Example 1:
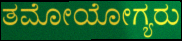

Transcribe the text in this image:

ತಮೋಯೋಗ್ಯರು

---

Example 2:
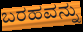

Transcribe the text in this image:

ಬರಹವನ್ನು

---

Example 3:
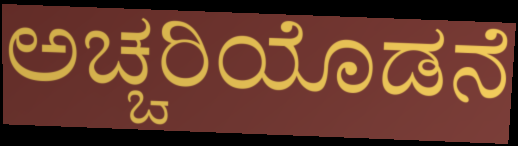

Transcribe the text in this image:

ಅಚ್ಚರಿಯೊಡನೆ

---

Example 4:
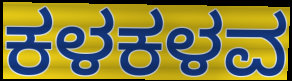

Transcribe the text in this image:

ಕಳಕಳವ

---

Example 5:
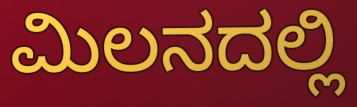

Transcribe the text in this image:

ಮಿಲನದಲ್ಲಿ